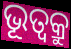
ଭୂତ୍ଵକ୍ରୁ